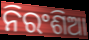
ନିରଂଶିଆ